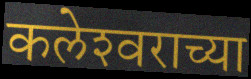
कलेश्वराच्या